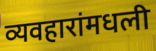
व्यवहारांमधली